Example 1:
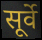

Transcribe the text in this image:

सूर्वे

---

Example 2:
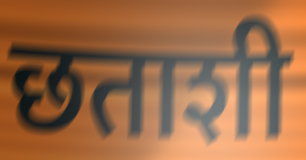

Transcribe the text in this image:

छताशी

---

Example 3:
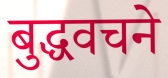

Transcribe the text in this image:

बुद्धवचने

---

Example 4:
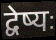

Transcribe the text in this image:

द्वेष्यः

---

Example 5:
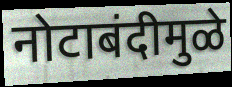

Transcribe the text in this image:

नोटाबंदीमुळे